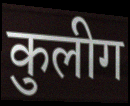
कुलीग